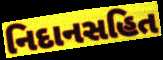
નિદાનસહિત